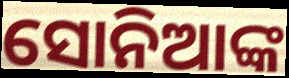
ସୋନିଆଙ୍କ